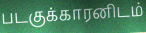
படகுக்காரனிடம்